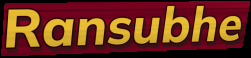
Ransubhe